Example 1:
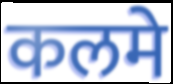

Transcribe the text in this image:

कलमे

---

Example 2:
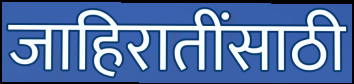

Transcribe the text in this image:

जाहिरातींसाठी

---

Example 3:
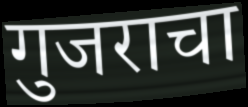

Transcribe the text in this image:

गुजराचा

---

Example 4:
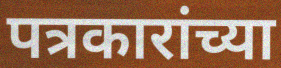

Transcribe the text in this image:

पत्रकारांच्या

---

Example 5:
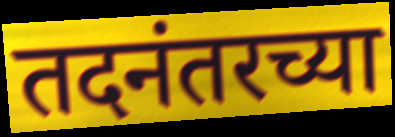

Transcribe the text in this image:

तदनंतरच्या